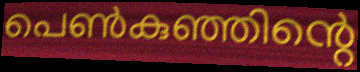
പെൺകുഞ്ഞിന്റെ